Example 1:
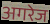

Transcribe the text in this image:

अगरेज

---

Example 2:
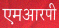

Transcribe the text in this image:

एमआरपी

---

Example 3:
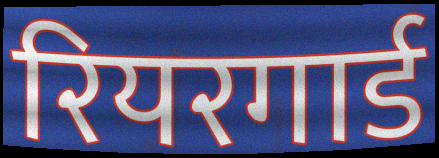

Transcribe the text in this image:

रियरगार्ड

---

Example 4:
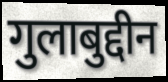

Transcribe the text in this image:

गुलाबुद्दीन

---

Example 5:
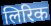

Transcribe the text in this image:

लिरिक